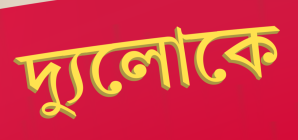
দ্যুলোকে